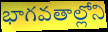
భాగవతాల్లోని